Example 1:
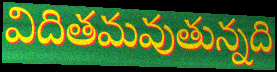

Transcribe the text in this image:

విదితమవుతున్నది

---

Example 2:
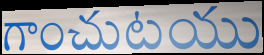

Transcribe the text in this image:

గాంచుటయు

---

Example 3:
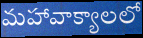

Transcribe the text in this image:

మహావాక్యాలలో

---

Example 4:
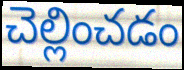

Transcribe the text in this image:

చెల్లించడం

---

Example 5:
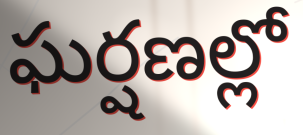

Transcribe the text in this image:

ఘర్షణల్లో